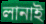
লানাই